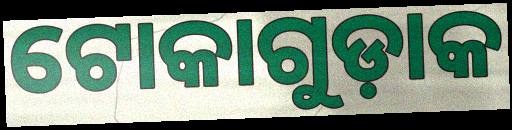
ଟୋକାଗୁଡ଼ାକ